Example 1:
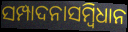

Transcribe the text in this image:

ସମ୍ପାଦନାସମ୍ବିଧାନ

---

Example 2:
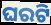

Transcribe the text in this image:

ଘରଟି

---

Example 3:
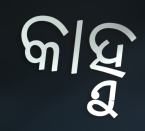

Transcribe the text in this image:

କାହ୍ନୁ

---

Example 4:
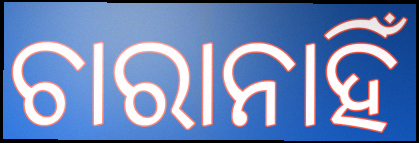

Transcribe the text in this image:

ଚାରାନାହିଁ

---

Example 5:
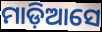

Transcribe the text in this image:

ମାଡ଼ିଆସେ